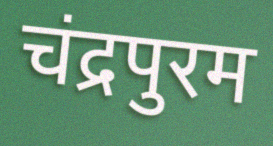
चंद्रपुरम